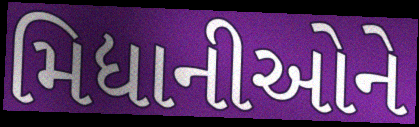
મિદ્યાનીઓને